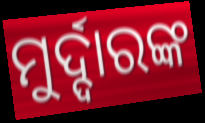
ମୁର୍ଦ୍ଦାରଙ୍କ